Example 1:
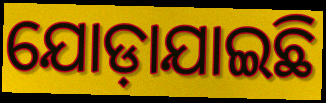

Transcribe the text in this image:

ଯୋଡ଼ାଯାଇଛି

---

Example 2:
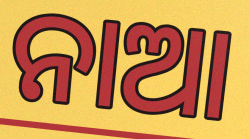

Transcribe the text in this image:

ନାଆ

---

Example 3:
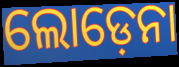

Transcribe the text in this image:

ଲୋଡ଼େନା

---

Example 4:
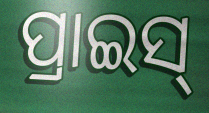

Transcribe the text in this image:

ପ୍ରାଇସ୍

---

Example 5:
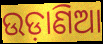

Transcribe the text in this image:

ଉଡ଼ାଣିଆ